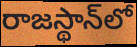
రాజస్థాన్‌లో